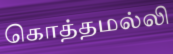
கொத்தமல்லி